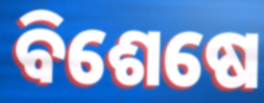
ବିଶେଷେ